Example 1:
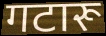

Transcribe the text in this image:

गटारू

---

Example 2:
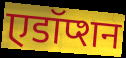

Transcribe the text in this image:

एडॉप्शन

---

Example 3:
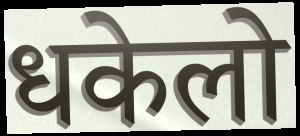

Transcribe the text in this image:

धकेलो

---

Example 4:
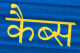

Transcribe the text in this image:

कैब्स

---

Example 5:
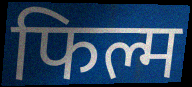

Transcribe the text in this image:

फिल्‍म